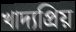
খাদ্যপ্রিয়